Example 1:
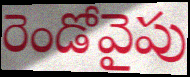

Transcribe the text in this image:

రెండోవైపు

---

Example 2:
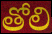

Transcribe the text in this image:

తోలి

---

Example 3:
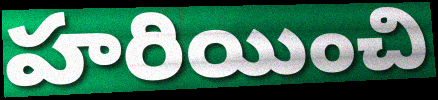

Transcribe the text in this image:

హరియించి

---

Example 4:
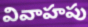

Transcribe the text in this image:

వివాహపు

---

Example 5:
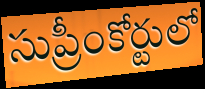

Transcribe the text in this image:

సుప్రీంకోర్టులో